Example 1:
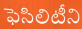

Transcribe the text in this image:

ఫెసిలిటీని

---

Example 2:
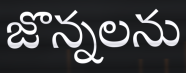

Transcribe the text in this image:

జొన్నలను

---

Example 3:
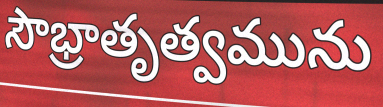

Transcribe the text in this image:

సౌభ్రాతృత్వమును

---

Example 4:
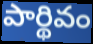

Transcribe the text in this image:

పార్థివం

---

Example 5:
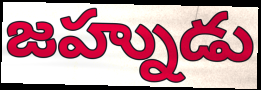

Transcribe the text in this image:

జహ్నుడు